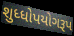
શુધ્ધોપયોગરૂપ